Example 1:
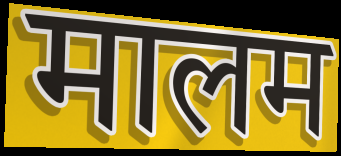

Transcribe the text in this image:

मालम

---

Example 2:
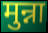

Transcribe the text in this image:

मुन्ना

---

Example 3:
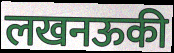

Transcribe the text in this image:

लखनऊकी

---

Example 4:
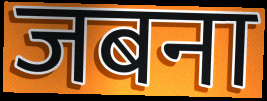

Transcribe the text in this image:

जबना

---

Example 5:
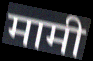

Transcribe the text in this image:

मामी